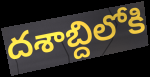
దశాబ్దిలోకి